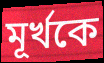
মূর্খকে